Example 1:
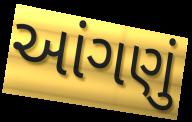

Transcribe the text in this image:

આંગણું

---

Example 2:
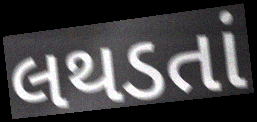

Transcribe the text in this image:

લથડતાં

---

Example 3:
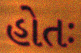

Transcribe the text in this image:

હોતઃ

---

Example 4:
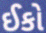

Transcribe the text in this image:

ઈકો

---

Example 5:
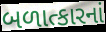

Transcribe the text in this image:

બળાત્કારનાં